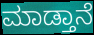
ಮಾಡ್ತಾನೆ